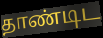
தாண்டிட